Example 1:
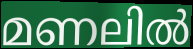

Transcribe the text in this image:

മണലിൽ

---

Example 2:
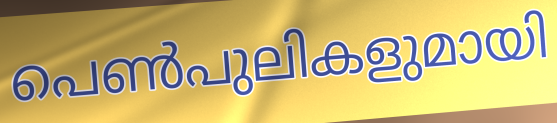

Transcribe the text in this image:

പെൺപുലികളുമായി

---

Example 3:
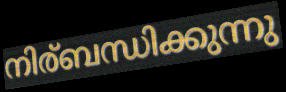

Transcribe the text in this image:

നിര്ബന്ധിക്കുന്നു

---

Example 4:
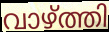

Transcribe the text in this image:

വാഴ്ത്തി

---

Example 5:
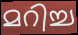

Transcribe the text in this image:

മറിച്ച